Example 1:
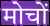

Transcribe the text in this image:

मोचों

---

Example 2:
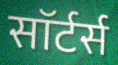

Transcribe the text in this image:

सॉर्टर्स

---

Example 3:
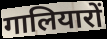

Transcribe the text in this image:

गालियारों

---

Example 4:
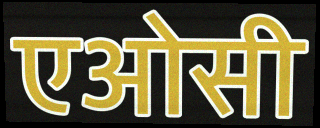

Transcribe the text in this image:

एओसी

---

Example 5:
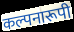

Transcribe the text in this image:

कल्पनारूपी